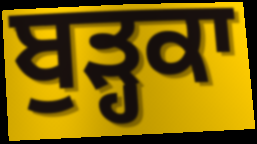
ਬੁੜ੍ਹਕਾ